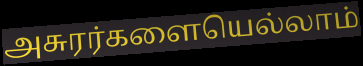
அசுரர்களையெல்லாம்